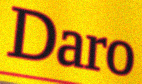
Daro